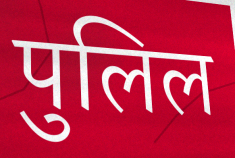
पुलिल